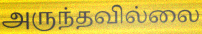
அருந்தவில்லை